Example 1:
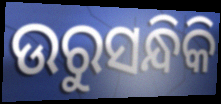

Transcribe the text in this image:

ଉରୁସନ୍ଧିକି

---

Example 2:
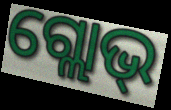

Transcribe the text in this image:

ଗ୍ଲୋଭ୍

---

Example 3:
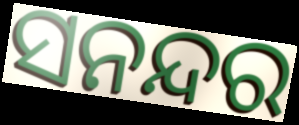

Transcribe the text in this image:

ସନନ୍ଦର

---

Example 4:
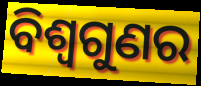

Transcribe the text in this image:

ବିଶ୍ୱଗୁଣର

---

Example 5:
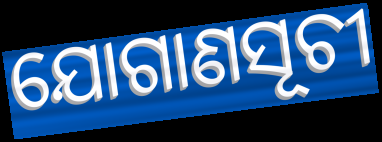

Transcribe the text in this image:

ଯୋଗାଣସୂଚୀ